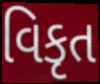
વિકૃત